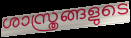
ശാസ്ത്രങ്ങളുടെ